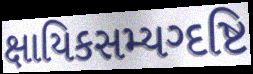
ક્ષાયિકસમ્યગ્દષ્ટિ